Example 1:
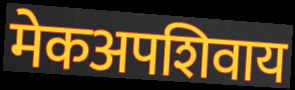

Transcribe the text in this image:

मेकअपशिवाय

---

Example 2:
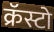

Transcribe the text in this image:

क्रॅस्टो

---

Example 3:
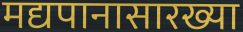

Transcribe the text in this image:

मद्यपानासारख्या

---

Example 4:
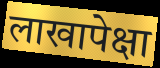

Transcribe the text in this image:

लाखापेक्षा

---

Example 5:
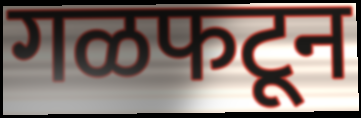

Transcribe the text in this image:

गळफटून